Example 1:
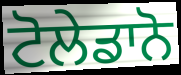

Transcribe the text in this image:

ਟੋਲੇਡਾਨੋ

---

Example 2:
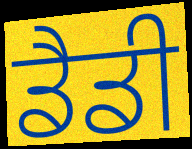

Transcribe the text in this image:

ਡੈਡੀ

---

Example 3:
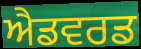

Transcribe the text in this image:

ਐਡਵਰਡ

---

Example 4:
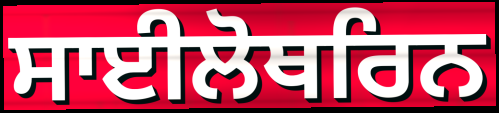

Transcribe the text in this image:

ਸਾਈਲੋਥਰਿਨ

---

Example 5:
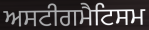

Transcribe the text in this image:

ਅਸਟੀਗਮੈਟਿਸਮ